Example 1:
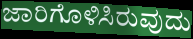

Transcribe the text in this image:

ಜಾರಿಗೊಳಿಸಿರುವುದು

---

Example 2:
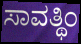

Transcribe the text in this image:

ಸಾವತ್ಥಿಂ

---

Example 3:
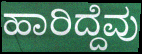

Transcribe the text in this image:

ಹಾರಿದ್ದೆವು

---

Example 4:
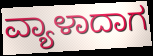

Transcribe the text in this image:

ವ್ಯಾಳಾದಾಗ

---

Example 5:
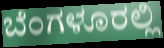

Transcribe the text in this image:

ಬೆಂಗಳೂರಲ್ಲಿ